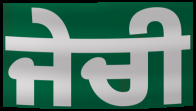
ਜੇਚੀ